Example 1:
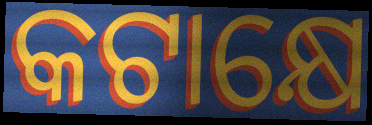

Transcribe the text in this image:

କଟାକ୍ଷେ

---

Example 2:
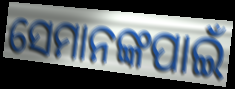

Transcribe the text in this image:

ସେମାନଙ୍କପାଇଁ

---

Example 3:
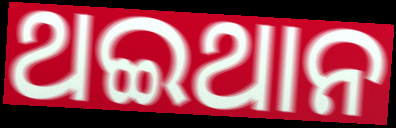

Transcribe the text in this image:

ଥଇଥାନ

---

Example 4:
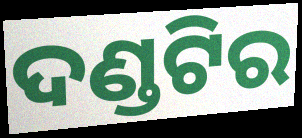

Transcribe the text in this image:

ଦଣ୍ଡଟିର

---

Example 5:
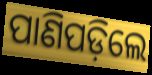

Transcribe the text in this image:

ପାଣିପଡ଼ିଲେ